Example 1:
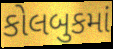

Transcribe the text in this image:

કોલબુકમાં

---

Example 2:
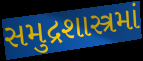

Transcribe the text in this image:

સમુદ્રશાસ્ત્રમાં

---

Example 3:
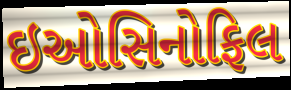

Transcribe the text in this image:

ઇઓસિનોફિલ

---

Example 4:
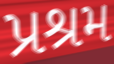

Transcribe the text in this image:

પ્રશ્રમ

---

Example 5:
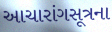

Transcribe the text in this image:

આચારાંગસૂત્રના